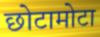
छोटामोटा